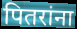
पितरांना